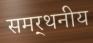
समर्थनीय